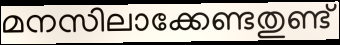
മനസിലാക്കേണ്ടതുണ്ട്